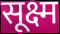
सूक्ष्म